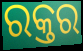
ରକ୍ତର